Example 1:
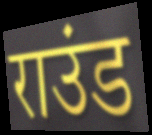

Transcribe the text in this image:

राउंड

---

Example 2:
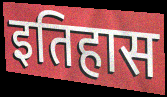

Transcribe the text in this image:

इतिहास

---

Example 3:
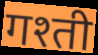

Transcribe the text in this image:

गश्ती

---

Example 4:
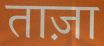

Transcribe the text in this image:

ताज़ा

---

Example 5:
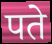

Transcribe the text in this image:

पते